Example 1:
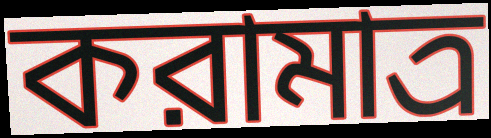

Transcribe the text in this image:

করামাত্র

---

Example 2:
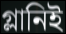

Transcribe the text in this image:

গ্লানিই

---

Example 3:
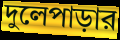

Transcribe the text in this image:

দুলেপাড়ার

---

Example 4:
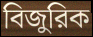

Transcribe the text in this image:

বিজুরিক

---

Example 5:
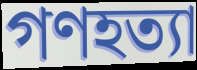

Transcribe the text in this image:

গণহত্যা